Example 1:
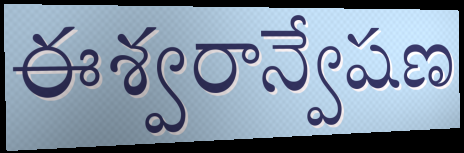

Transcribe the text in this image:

ఈశ్వరాన్వేషణ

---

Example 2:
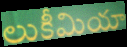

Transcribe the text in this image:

లుకీమియా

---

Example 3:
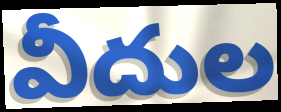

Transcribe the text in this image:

వీదుల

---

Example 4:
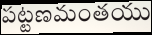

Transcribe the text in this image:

పట్టణమంతయు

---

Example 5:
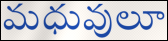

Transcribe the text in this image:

మధువులూ